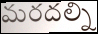
మరదల్ని